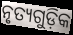
ନୃତ୍ୟଗୁଡ଼ିକ